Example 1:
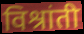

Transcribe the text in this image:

विश्रांती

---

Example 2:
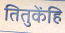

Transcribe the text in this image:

तितुकेंहि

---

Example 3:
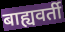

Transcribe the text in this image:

बाह्यवर्ती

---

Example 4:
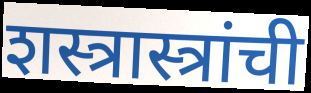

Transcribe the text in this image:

शस्त्रास्त्रांची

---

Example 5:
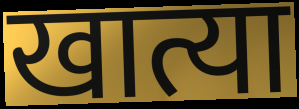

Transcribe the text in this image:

खात्या